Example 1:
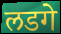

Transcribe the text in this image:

लडगे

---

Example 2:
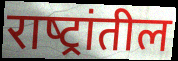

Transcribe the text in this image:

राष्ट्रांतील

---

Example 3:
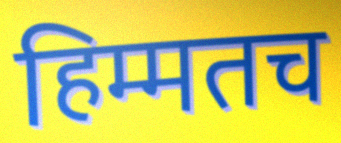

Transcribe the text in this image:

हिम्मतच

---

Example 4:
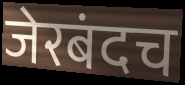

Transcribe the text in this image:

जेरबंदच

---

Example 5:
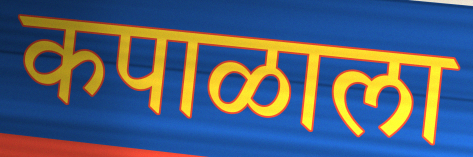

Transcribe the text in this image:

कपाळाला